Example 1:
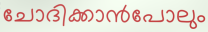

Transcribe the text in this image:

ചോദിക്കാൻപോലും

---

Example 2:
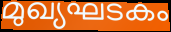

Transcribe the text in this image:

മുഖ്യഘടകം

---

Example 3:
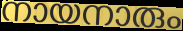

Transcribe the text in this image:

നായനാരും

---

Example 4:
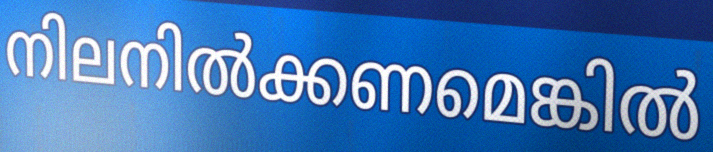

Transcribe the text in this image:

നിലനിൽക്കണമെങ്കിൽ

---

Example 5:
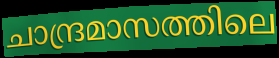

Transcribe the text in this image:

ചാന്ദ്രമാസത്തിലെ